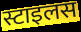
स्टाइलस